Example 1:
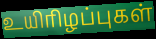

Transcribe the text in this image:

உயிரிழப்புகள்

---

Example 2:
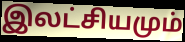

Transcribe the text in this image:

இலட்சியமும்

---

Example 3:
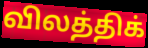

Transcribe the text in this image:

விலத்திக்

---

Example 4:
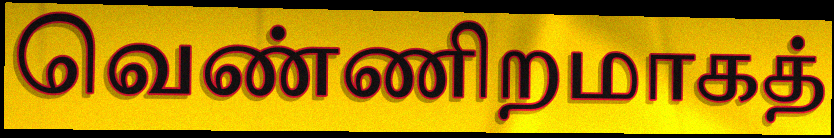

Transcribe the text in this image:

வெண்ணிறமாகத்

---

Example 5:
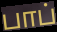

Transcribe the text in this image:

பாப்